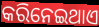
କରିନେଇଥାଏ